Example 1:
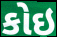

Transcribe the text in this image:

કોઇ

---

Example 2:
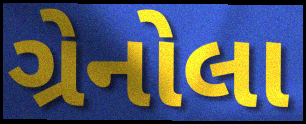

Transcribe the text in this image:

ગ્રેનોલા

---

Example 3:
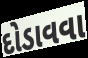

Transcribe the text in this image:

દોડાવવા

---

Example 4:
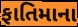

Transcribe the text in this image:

ફાતિમાના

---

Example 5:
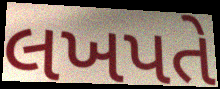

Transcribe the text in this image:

લખપતે